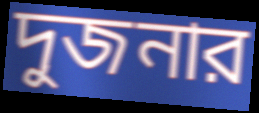
দুজনার